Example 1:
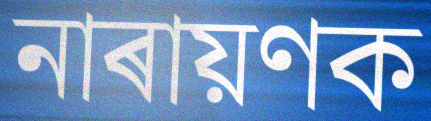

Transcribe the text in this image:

নাৰায়ণক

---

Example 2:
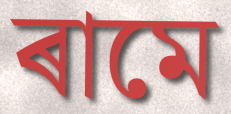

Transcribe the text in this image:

ৰামে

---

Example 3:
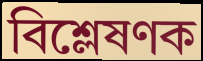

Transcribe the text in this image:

বিশ্লেষণক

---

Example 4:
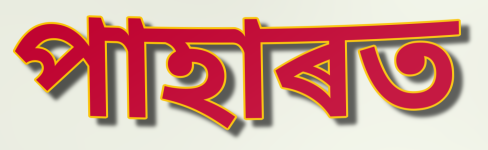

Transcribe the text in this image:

পাহাৰত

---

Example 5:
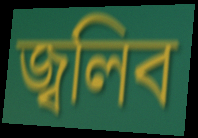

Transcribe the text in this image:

জ্বলিব